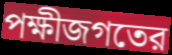
পক্ষীজগতের